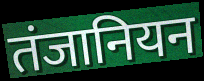
तंजानियन